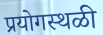
प्रयोगस्थळी